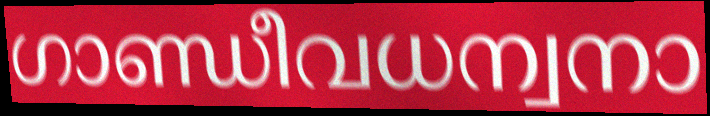
ഗാണ്ഡീവധന്വനാ